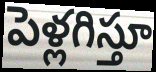
పెళ్లగిస్తూ